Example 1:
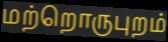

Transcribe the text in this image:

மற்றொருபுறம்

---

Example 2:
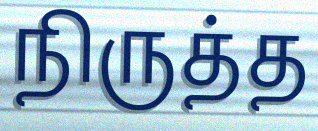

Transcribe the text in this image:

நிருத்த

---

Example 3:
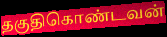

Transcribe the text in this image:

தகுதிகொண்டவன்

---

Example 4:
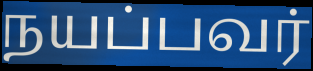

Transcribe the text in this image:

நயப்பவர்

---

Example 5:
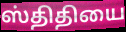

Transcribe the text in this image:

ஸ்திதியை